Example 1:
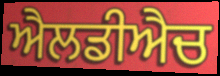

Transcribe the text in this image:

ਐਲਡੀਐਚ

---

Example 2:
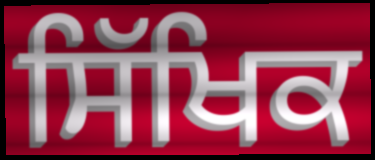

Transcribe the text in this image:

ਸਿੱਖਿਕ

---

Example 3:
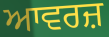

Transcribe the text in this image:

ਆਵਰਜ਼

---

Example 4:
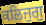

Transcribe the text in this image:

ਕਲਿਜੁਗੁ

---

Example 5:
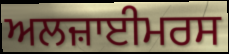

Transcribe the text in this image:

ਅਲਜ਼ਾਈਮਰਸ